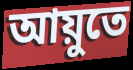
আয়ুতে